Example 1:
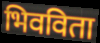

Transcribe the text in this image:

भिवविता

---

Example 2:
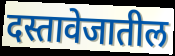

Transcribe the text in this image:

दस्तावेजातील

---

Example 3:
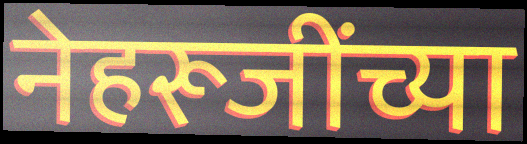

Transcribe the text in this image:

नेहरूजींच्या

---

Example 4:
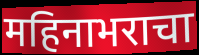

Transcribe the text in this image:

महिनाभराचा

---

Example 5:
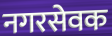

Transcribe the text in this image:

नगरसेवक